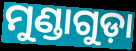
ମୁଣ୍ଡାଗୁଡ଼ା